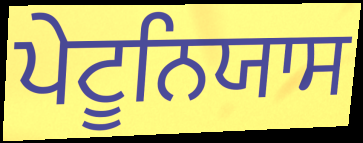
ਪੇਟੂਨਿਯਾਸ